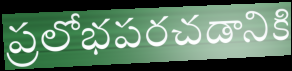
ప్రలోభపరచడానికి